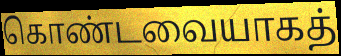
கொண்டவையாகத்